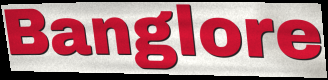
Banglore